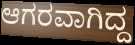
ಆಗರವಾಗಿದ್ದ